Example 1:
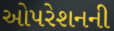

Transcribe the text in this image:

ઓપરેશનની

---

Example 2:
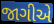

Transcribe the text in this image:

જાગીએ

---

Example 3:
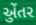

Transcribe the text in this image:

એુંતર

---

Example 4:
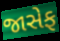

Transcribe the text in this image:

જાસેફ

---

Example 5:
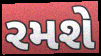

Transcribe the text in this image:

રમશે